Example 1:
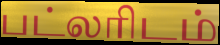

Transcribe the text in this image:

பட்லரிடம்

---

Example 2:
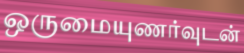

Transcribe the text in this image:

ஒருமையுணர்வுடன்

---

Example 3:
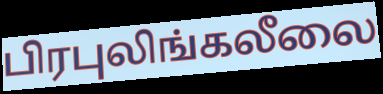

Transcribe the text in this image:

பிரபுலிங்கலீலை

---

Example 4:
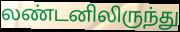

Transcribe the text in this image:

லண்டனிலிருந்து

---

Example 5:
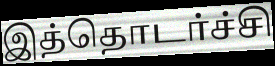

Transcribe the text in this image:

இத்தொடர்ச்சி